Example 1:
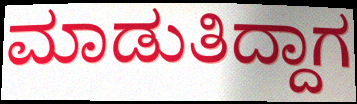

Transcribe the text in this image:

ಮಾಡುತಿದ್ದಾಗ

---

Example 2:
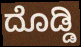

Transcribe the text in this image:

ದೊಡ್ಡಿ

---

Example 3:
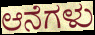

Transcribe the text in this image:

ಆನೆಗಳು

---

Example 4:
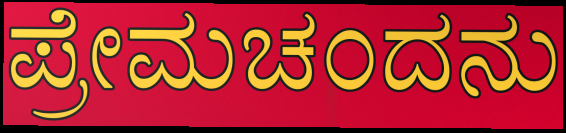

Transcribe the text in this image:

ಪ್ರೇಮಚಂದನು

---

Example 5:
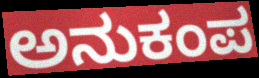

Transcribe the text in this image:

ಅನುಕಂಪ